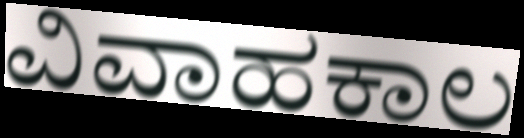
ವಿವಾಹಕಾಲ